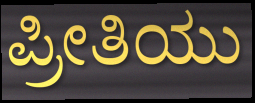
ಪ್ರೀತಿಯು